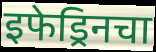
इफेड्रिनचा